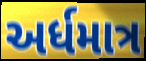
અર્ધમાત્ર